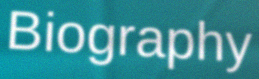
Biography